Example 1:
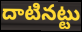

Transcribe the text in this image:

దాటినట్టు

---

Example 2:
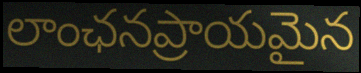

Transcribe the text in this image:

లాంఛనప్రాయమైన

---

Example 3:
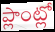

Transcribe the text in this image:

ప్లాంట్లో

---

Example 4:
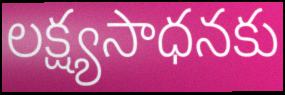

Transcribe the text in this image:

లక్ష్యసాధనకు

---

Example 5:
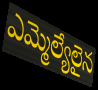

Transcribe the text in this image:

ఎమ్మెల్యేలైన